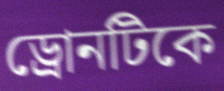
ড্রোনটিকে